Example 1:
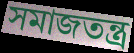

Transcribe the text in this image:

সমাজতন্ত্র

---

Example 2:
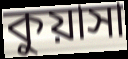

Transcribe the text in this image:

কুয়াসা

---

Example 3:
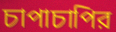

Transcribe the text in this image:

চাপাচাপির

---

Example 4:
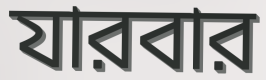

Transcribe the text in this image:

যারবার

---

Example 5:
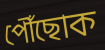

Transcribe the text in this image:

পৌঁছোক